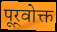
पूर्वोक्त